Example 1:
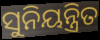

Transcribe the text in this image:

ସୁନିୟନ୍ତ୍ରିତ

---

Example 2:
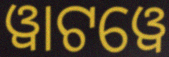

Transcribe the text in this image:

ୱାଟୱେ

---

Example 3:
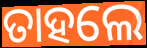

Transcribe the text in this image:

ତାହଲେ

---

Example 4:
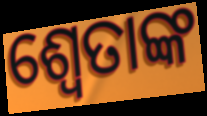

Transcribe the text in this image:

ଶ୍ୱେତାଙ୍କ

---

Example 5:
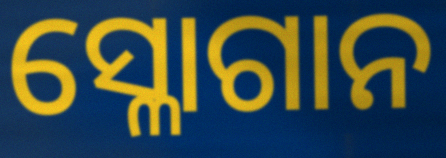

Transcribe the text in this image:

ସ୍ଳୋଗାନ